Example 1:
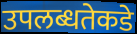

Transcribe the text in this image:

उपलब्धतेकडे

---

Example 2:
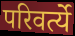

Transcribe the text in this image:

परिवर्त्ये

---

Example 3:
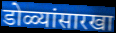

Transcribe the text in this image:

डोळ्यांसारखा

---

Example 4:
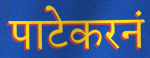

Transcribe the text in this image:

पाटेकरनं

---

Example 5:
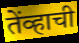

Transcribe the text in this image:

तेंव्हाची